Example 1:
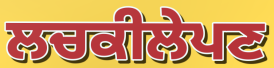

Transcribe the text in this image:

ਲਚਕੀਲੇਪਣ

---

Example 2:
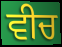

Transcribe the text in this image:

ਵੀਚ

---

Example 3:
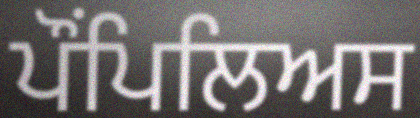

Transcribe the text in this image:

ਪੌਂਪਿਲਿਅਸ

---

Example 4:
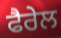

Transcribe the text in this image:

ਫੈਰੇਲ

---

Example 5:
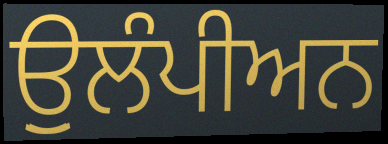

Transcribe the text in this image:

ਉੁਲੰਪੀਅਨ